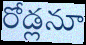
రోడ్లనూ